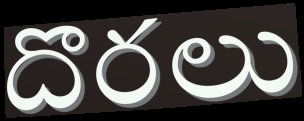
దొరలు